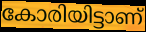
കോരിയിട്ടാണ്